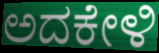
ಅದಕೇಳಿ